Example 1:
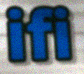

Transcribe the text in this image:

ifi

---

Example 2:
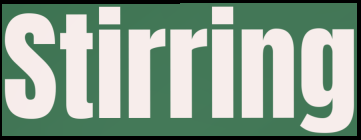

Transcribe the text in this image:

Stirring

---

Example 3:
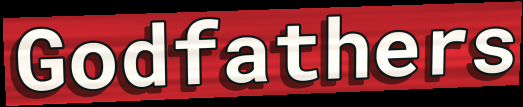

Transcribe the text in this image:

Godfathers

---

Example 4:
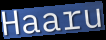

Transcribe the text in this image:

Haaru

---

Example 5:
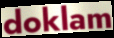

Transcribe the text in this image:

doklam